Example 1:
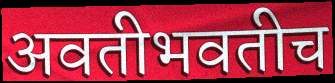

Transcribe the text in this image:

अवतीभवतीच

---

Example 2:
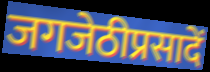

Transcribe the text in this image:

जगजेठीप्रसादें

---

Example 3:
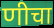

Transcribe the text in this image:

णीचा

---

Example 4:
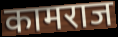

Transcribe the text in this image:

कामराज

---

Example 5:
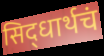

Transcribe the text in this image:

सिद्धार्थचं